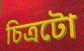
চিত্ৰটো